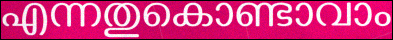
എന്നതുകൊണ്ടാവാം